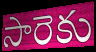
సారెకు